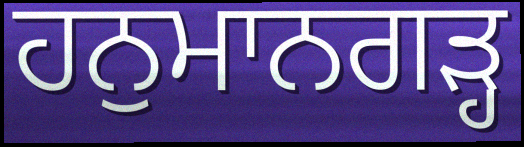
ਹਨੁਮਾਨਗੜ੍ਹ